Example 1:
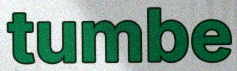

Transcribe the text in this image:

tumbe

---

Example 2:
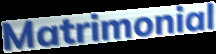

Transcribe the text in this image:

Matrimonial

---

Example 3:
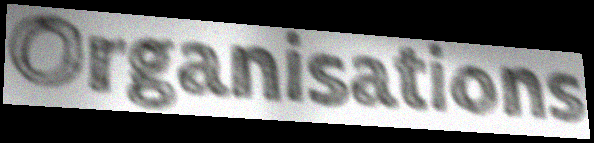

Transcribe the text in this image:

Organisations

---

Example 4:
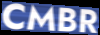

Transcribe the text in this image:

CMBR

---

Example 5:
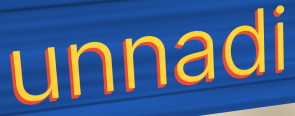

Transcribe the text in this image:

unnadi